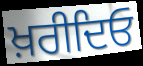
ਖ਼ਰੀਦਿਓ